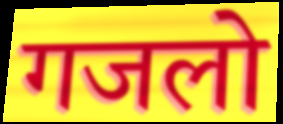
गजलो